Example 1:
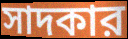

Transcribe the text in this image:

সাদকার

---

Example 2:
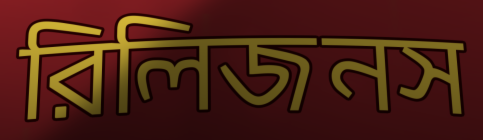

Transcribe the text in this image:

রিলিজনস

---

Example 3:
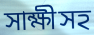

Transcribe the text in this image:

সাক্ষীসহ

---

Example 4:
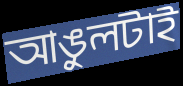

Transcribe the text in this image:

আঙুলটাই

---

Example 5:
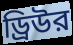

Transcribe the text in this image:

ড্রিউর